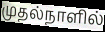
முதல்நாளில்